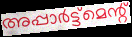
അപ്പാർട്ട്മെന്റ്